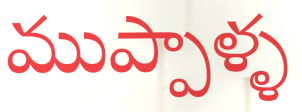
ముప్పాళ్ళ